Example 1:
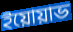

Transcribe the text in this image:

ইয়োয়াভ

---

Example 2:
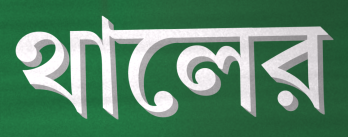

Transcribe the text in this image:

থালের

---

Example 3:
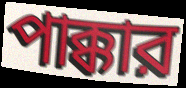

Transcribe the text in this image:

পাক্কার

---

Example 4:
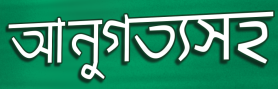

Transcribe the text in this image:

আনুগত্যসহ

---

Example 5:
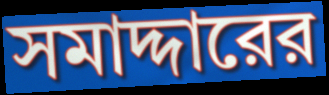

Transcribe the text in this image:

সমাদ্দারের